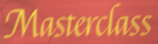
Masterclass